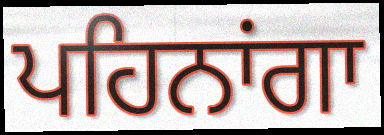
ਪਹਿਨਾਂਗਾ